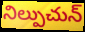
నిల్పుచున్